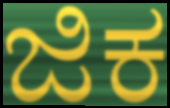
ಜಿಕ